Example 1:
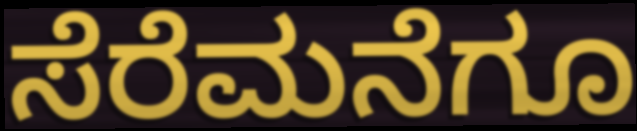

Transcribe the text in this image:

ಸೆರೆಮನೆಗೂ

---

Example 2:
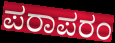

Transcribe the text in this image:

ಪರಾಪರಂ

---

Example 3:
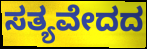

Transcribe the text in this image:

ಸತ್ಯವೇದದ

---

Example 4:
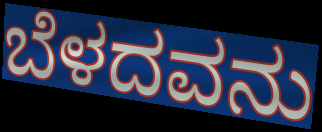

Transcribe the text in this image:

ಬೆಳದವನು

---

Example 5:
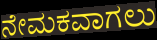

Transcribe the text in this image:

ನೇಮಕವಾಗಲು